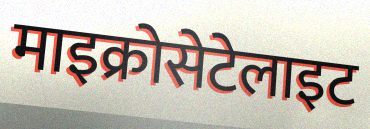
माइक्रोसेटेलाइट